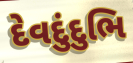
દેવદુંદુભિ